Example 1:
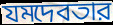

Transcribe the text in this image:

যমদেবতার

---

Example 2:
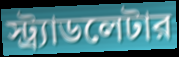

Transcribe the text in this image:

স্ট্র্যাডলেটার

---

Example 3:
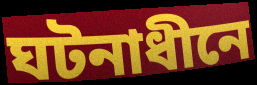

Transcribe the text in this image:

ঘটনাধীনে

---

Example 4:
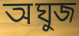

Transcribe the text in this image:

অঘুজ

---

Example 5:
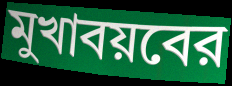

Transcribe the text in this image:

মুখাবয়বের